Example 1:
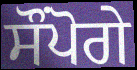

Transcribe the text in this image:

ਸੌਂਪੋਗੇ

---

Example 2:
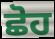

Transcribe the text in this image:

ਛੋਹ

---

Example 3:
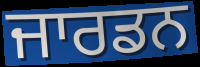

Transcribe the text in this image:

ਜਾਰਡਨ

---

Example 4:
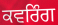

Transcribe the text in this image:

ਕਵਰਿੰਗ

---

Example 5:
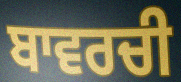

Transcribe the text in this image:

ਬਾਵਰਚੀ